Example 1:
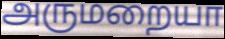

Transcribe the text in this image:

அருமறையா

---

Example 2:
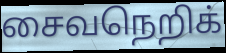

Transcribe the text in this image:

சைவநெறிக்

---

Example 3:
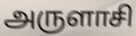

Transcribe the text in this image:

அருளாசி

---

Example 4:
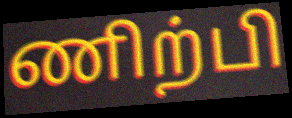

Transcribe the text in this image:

ணிற்பி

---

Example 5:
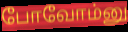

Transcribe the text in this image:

போவோம்னு